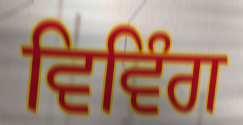
ਵਿਵਿੰਗ